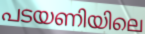
പടയണിയിലെ